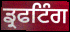
ਡ੍ਰਫਟਿੰਗ